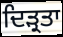
ਦਿੜ੍ਰਤਾ